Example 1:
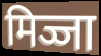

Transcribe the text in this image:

मिज्जा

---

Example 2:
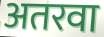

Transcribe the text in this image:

अतरवा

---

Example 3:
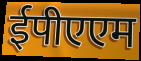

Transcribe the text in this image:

ईपीएएम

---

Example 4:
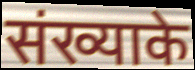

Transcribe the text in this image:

संख्याके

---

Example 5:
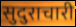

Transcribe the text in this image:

सुदुराचारी